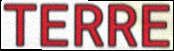
TERRE